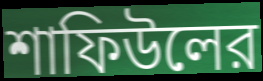
শাফিউলের